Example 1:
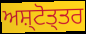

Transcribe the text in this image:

ਅਸ਼੍ਟੋਤ੍ਤਰ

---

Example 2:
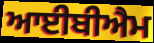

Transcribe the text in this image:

ਆਈਬੀਐਮ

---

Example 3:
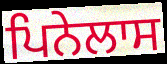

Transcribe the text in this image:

ਪਿਨੇਲਾਸ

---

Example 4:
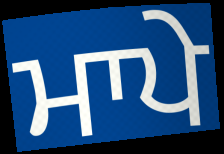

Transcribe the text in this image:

ਮਾਪੇ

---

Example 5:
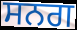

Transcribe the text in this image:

ਸਨਗ